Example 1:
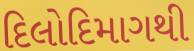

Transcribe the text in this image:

દિલોદિમાગથી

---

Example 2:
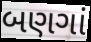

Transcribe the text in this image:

બણગાં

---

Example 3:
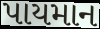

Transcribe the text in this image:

પાયમાન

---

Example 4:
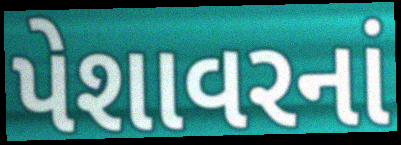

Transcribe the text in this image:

પેશાવરનાં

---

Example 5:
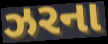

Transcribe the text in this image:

ઝરના